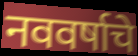
नववर्षाचे